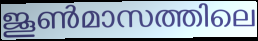
ജൂൺമാസത്തിലെ